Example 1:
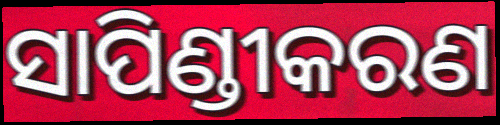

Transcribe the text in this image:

ସାପିଣ୍ଡୀକରଣ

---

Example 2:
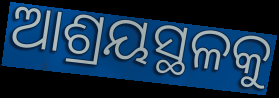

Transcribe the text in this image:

ଆଶ୍ରୟସ୍ଥଳକୁ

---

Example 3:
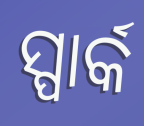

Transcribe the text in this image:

ସ୍ପାର୍କ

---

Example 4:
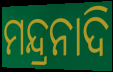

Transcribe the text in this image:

ମନ୍ଦ୍ରନାଦି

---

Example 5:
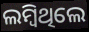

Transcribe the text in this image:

ଲମ୍ବିଥିଲେ